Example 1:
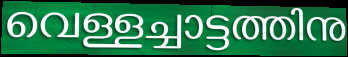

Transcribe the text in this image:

വെള്ളച്ചാട്ടത്തിനു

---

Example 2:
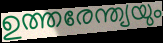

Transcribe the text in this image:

ഉത്തരേന്ത്യയും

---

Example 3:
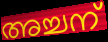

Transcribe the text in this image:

അച്ചന്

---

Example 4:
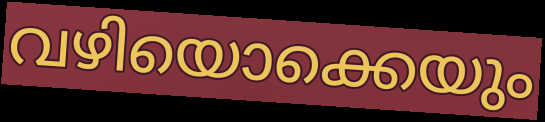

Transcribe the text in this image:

വഴിയൊക്കെയും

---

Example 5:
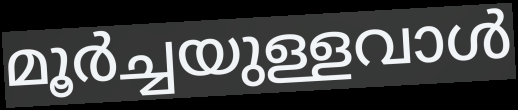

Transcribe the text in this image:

മൂർച്ചയുള്ളവാൾ